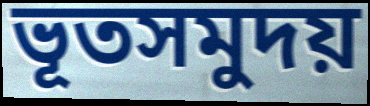
ভূতসমুদয়